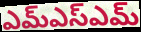
ఎమ్ఎస్ఎమ్